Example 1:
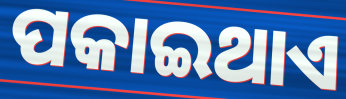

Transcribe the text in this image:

ପକାଇଥାଏ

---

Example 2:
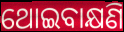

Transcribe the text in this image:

ଥୋଇବାକ୍ଷଣି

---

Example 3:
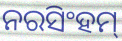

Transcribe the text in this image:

ନରସିଂହମ୍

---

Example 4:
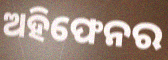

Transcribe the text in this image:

ଅହିଫେନର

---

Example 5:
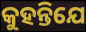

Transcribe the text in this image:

କୁହନ୍ତିଯେ